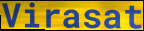
Virasat